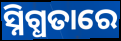
ସ୍ନିଗ୍ଧତାରେ